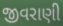
જીવરાણી